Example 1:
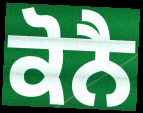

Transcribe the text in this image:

ਕੋਨੈ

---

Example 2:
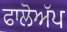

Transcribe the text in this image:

ਫਾਲੋਅੱਪ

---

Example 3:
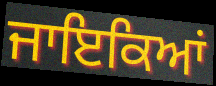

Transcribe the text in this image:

ਜਾਇਕਿਆਂ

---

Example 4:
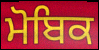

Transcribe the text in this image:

ਮੋਬਿਕ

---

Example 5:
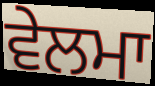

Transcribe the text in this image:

ਵੇਲਮਾ